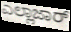
ಎಲ್ಲಾಜಾರ್